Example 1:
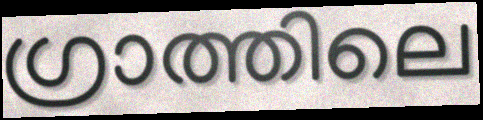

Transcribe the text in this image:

ഗ്രാത്തിലെ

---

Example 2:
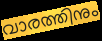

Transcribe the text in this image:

വാരത്തിനും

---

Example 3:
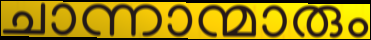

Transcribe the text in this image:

ചാന്നാന്മാരും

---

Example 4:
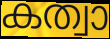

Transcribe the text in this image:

കത്വാ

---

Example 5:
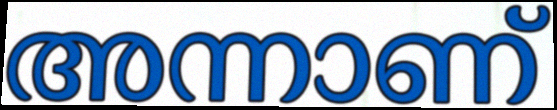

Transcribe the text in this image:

അന്നാണ്